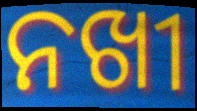
ନଖୀ